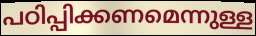
പഠിപ്പിക്കണമെന്നുള്ള